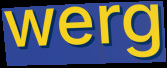
werg